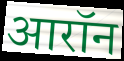
आरॉन